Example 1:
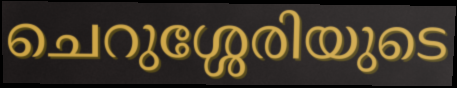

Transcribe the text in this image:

ചെറുശ്ശേരിയുടെ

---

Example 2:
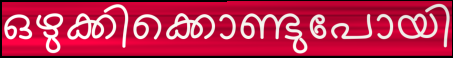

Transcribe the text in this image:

ഒഴുക്കിക്കൊണ്ടുപോയി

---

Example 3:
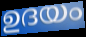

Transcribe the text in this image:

ഉദയം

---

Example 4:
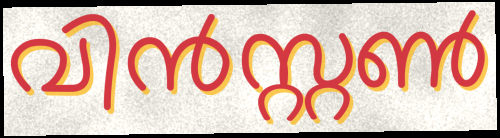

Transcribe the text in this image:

വിൻസ്റ്റൺ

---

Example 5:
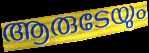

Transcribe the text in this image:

ആരുടേയും